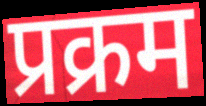
प्रक्रम